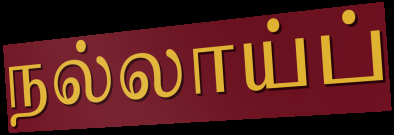
நல்லாய்ப்